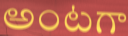
అంటగా